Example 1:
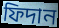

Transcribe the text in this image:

ফিদান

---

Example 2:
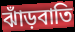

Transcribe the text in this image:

ঝাঁড়বাতি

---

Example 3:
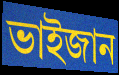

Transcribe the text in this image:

ভাইজান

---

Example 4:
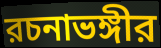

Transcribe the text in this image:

রচনাভঙ্গীর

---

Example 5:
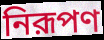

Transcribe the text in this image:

নিরূপণ